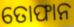
ତୋଫାନ